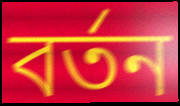
বৰ্তন